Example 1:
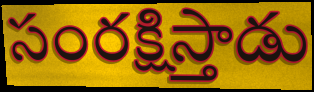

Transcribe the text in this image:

సంరక్షిస్తాడు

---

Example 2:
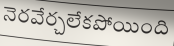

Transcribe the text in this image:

నెరవేర్చలేకపోయింది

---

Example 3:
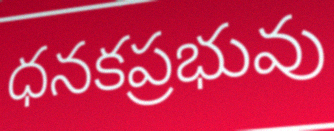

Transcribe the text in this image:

ధనకప్రభువు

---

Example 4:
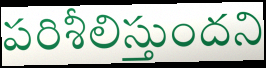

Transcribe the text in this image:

పరిశీలిస్తుందని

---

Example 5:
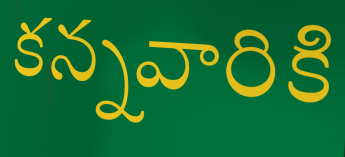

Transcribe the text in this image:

కన్నవారికి